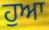
ਹੁਆ